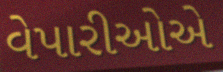
વેપારીઓએ